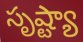
సృష్ట్యా